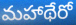
మహాథేరో